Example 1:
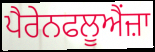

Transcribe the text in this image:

ਪੈਰੇਨਫਲੂਐਂਜ਼ਾ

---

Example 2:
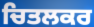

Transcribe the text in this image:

ਚਿਤਲਕਰ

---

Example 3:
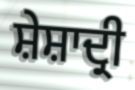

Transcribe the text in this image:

ਸ਼ੇਸ਼ਾਦ੍ਰੀ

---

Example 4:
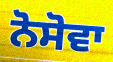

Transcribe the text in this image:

ਨੋਸੋਵਾ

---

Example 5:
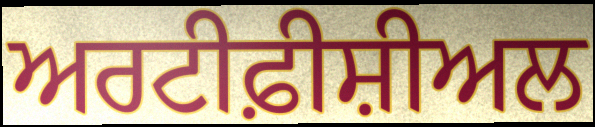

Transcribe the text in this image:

ਅਰਟੀਫ਼ੀਸ਼ੀਅਲ